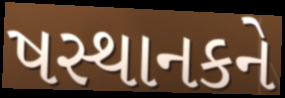
ષસ્થાનકને